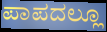
ಪಾಪದಲ್ಲೂ